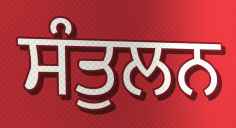
ਸੰਤੁਲਨ